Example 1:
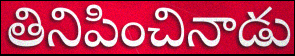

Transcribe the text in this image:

తినిపించినాడు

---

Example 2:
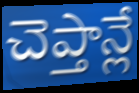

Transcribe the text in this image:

చెప్తాన్లే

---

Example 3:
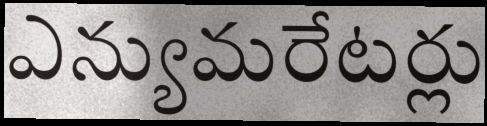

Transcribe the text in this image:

ఎన్యుమరేటర్లు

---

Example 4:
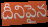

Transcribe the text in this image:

దీనిపైన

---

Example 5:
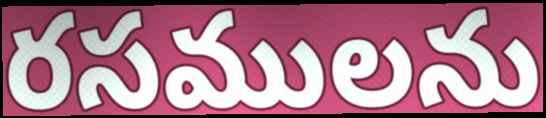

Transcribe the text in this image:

రసములను